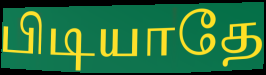
பிடியாதே